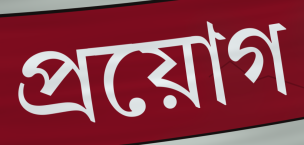
প্ৰয়োগ